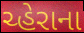
ચ્હેરાના